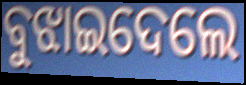
ବୁଝାଇଦେଲେ